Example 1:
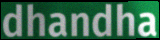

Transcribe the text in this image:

dhandha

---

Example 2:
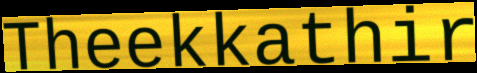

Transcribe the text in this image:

Theekkathir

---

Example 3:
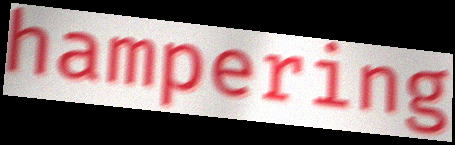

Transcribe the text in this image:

hampering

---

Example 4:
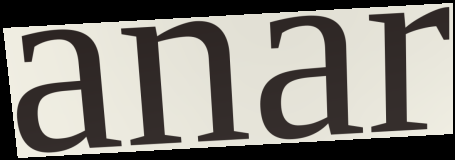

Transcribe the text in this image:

anar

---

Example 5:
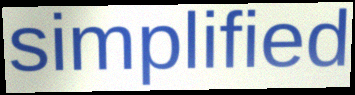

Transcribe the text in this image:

simplified